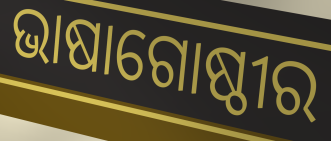
ଭାଷାଗୋଷ୍ଠୀର